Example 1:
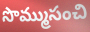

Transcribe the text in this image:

సొమ్ముసంచి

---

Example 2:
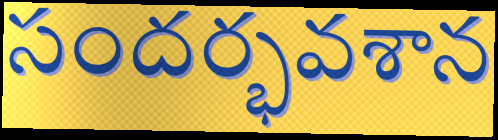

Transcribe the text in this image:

సందర్భవశాన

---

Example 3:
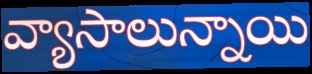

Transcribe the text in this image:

వ్యాసాలున్నాయి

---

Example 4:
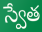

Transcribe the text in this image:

స్వేత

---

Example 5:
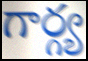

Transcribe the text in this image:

గార్గ్య